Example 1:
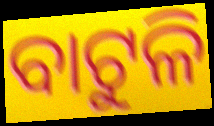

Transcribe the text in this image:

ବାଟୁଳି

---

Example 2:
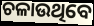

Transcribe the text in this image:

ଚଳାଉଥିବେ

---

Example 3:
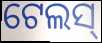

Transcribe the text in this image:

ଟେଲସ୍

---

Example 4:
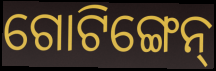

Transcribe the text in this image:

ଗୋଟିଙ୍ଗେନ୍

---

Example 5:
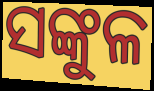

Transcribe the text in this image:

ସଙ୍କୁଳ